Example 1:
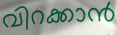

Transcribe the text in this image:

വിറക്കാൻ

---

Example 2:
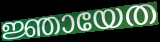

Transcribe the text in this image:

ജ്ഞായേത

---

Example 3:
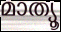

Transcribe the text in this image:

മാത്യൂ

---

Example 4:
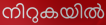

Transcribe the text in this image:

നിറുകയിൽ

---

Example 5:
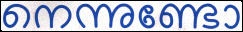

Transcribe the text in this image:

നെന്നുണ്ടോ